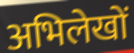
अभिलेखों